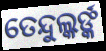
ତେନ୍ଦୁଲ୍କର୍ଙ୍କ